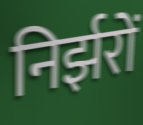
निर्झरों